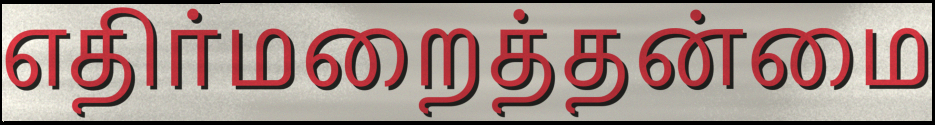
எதிர்மறைத்தன்மை